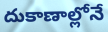
దుకాణాల్లోనే